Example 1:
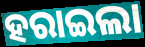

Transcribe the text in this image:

ହରାଇଲା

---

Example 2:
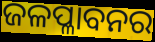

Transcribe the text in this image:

ଜଳପ୍ଳାବନର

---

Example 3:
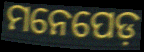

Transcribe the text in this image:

ମନେପେଡ଼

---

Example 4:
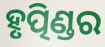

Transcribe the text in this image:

ହୃତ୍ପିଣ୍ଡର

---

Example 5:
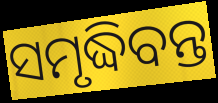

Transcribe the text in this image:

ସମୃଦ୍ଧିବନ୍ତ